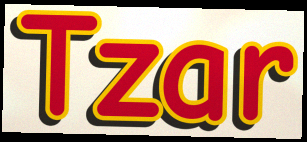
Tzar